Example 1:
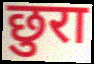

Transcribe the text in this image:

छुरा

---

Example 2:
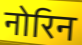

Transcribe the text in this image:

नोरिन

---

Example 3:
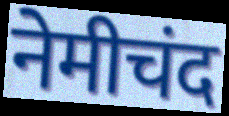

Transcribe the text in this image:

नेमीचंद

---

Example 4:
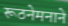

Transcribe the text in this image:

रूठनेमनाने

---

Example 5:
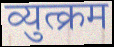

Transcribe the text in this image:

व्युत्क्रम